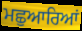
ਮਛੁਆਰਿਆਂ